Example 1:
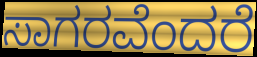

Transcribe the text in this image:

ಸಾಗರವೆಂದರೆ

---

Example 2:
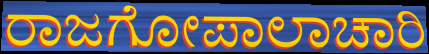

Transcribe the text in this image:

ರಾಜಗೋಪಾಲಾಚಾರಿ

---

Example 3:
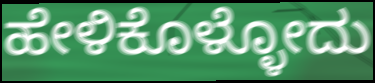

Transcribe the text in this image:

ಹೇಳಿಕೊಳ್ಳೋದು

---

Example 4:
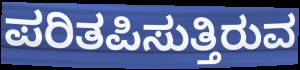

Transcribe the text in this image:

ಪರಿತಪಿಸುತ್ತಿರುವ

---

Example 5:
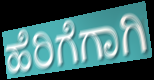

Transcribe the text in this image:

ಹೆರಿಗೆಗಾಗಿ